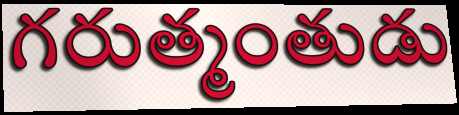
గరుత్మంతుడు